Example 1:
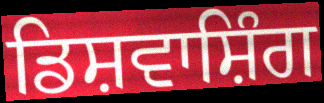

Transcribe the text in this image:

ਡਿਸ਼ਵਾਸ਼ਿੰਗ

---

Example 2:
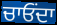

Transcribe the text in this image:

ਚਾਓਂਦਾ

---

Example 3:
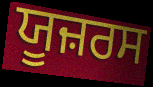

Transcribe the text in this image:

ਯੂਜ਼ਰਸ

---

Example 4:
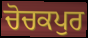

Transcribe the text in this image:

ਚੋਚਕਪੁਰ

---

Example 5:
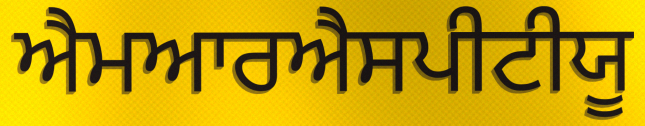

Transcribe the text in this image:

ਐਮਆਰਐਸਪੀਟੀਯੂ